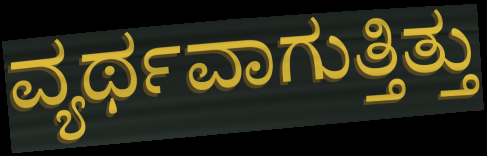
ವ್ಯರ್ಥವಾಗುತ್ತಿತ್ತು